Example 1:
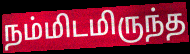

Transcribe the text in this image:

நம்மிடமிருந்த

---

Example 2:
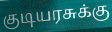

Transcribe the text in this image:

குடியரசுக்கு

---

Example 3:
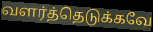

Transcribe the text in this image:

வளர்த்தெடுக்கவே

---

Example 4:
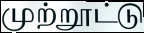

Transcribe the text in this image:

முற்றூட்டு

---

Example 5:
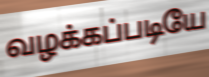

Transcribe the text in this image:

வழக்கப்படியே